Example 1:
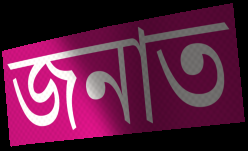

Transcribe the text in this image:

জনাত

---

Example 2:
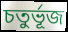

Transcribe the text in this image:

চতুৰ্ভূজ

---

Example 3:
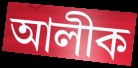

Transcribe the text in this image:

আলীক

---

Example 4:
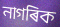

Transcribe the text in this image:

নাগৰিক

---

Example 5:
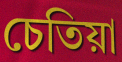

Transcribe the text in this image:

চেতিয়া